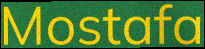
Mostafa